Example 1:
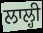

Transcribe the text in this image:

ਲਾਲ੍ਹੀ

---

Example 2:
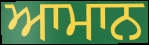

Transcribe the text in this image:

ਆਮਾਨ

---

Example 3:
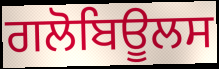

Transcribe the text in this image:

ਗਲੋਬਿਊਲਸ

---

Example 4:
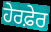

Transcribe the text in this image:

ਹੇਰਫ਼ੇਰ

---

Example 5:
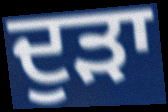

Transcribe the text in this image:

ਦੁੜਾ